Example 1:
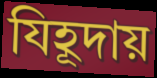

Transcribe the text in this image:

যিহূদায়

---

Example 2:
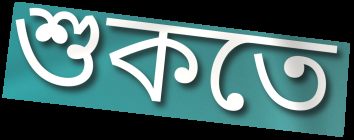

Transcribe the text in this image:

শুকতে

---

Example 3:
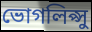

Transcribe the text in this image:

ভোগলিপ্সু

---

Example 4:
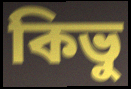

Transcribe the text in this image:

কিভু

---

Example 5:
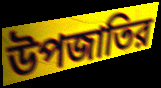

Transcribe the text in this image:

উপজাতির